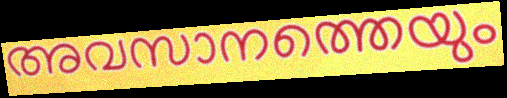
അവസാനത്തെയും